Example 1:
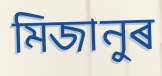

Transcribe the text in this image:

মিজানুৰ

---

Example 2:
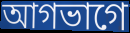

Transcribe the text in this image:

আগভাগে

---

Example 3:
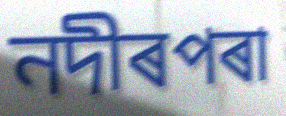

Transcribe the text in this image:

নদীৰপৰা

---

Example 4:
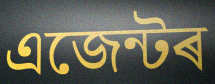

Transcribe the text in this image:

এজেন্টৰ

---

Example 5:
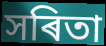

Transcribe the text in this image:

সৰিতা